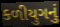
કળીયુગનું